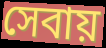
সেবায়